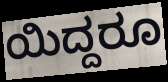
ಯಿದ್ದರೂ